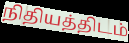
நிதியத்திடம்